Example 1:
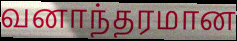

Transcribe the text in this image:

வனாந்தரமான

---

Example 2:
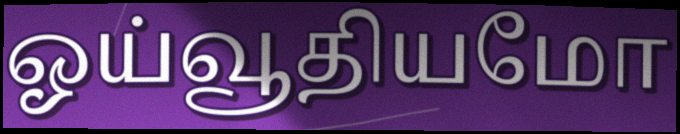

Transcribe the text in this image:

ஓய்வூதியமோ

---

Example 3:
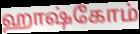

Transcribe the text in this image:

ஹாஷ்கோம்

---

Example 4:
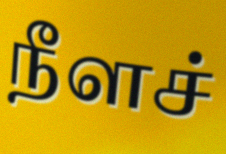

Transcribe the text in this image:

நீளச்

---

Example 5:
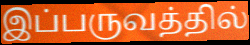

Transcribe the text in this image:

இப்பருவத்தில்